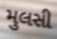
મુલસી